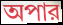
অপার